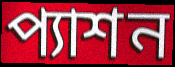
প্যাশন